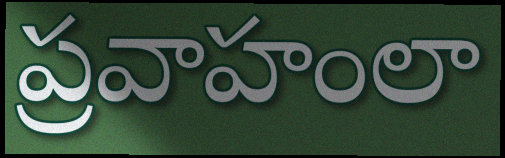
ప్రవాహంలా